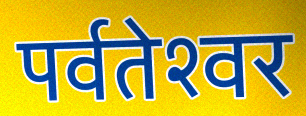
पर्वतेश्वर